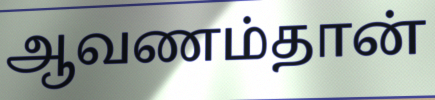
ஆவணம்தான்